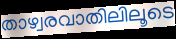
താഴ്വരവാതിലിലൂടെ